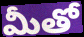
మీతో